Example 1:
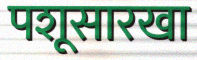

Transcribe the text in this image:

पशूसारखा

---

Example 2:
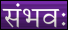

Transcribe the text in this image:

संभवः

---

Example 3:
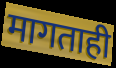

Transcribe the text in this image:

मागताही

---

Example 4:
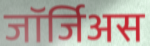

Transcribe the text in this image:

जॉर्जिअस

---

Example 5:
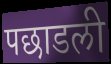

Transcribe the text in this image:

पछाडली